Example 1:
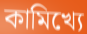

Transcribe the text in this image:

কামিখ্যে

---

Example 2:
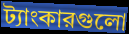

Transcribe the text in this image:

ট্যাংকারগুলো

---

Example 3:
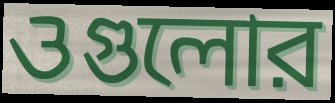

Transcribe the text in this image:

ওগুলোর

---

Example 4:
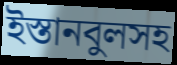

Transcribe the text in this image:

ইস্তানবুলসহ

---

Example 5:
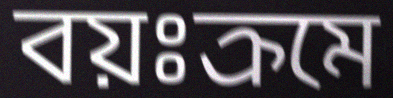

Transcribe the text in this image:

বয়ঃক্রমে